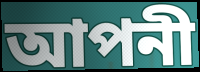
আপনী